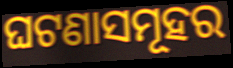
ଘଟଣାସମୂହର